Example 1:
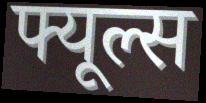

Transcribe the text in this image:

फ्यूल्स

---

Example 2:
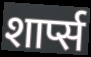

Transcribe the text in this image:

शार्प्स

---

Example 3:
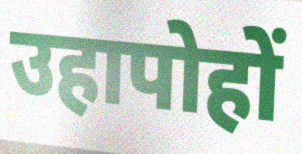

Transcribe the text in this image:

उहापोहों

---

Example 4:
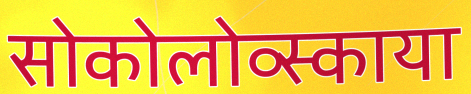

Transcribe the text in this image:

सोकोलोव्स्काया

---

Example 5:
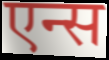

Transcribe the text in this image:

एन्स